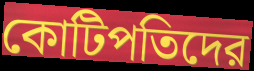
কোটিপতিদের